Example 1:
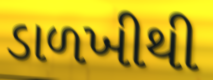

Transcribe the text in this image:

ડાળખીથી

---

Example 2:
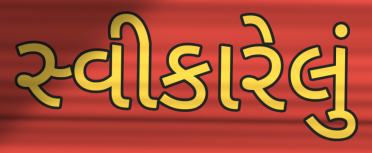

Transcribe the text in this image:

સ્વીકારેલું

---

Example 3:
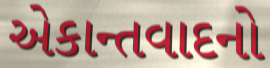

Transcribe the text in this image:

એકાન્તવાદનો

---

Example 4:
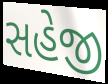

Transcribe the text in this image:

સહેજી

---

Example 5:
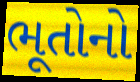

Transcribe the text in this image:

ભૂતોનો